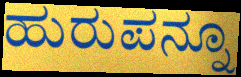
ಹುರುಪನ್ನೂ